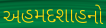
અહમદશાહનો